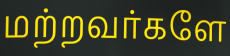
மற்றவர்களே